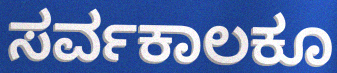
ಸರ್ವಕಾಲಕೂ